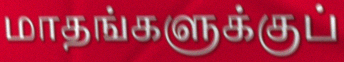
மாதங்களுக்குப்